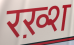
रख़्श